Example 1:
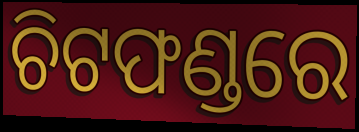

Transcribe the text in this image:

ଚିଟଫଣ୍ଡରେ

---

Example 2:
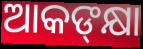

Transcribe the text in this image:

ଆକଙ୍‍କ୍ଷା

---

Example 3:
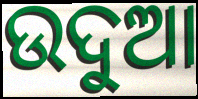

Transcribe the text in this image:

ଉଦୁଆ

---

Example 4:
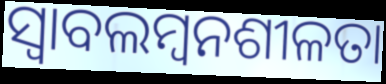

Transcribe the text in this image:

ସ୍ୱାବଲମ୍ବନଶୀଳତା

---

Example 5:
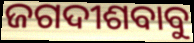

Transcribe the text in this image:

ଜଗଦୀଶବାବୁ